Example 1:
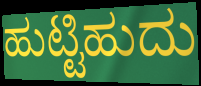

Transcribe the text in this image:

ಹುಟ್ಟಿಹುದು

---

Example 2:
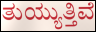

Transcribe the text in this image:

ತುಯ್ಯುತ್ತಿವೆ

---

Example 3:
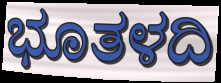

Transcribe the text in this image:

ಭೂತಳದಿ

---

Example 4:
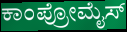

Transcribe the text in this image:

ಕಾಂಪ್ರೋಮೈಸ್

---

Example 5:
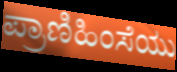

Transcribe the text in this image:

ಪ್ರಾಣಿಹಿಂಸೆಯು